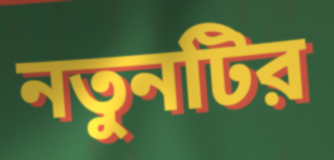
নতুনটির